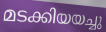
മടക്കിയയച്ചു